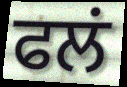
ਫਲਂ